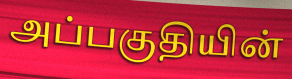
அப்பகுதியின்